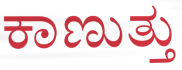
ಕಾಣುತ್ತು